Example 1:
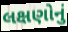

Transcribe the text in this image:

લક્ષણોનું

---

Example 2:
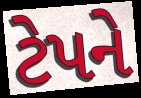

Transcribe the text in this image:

ટેપને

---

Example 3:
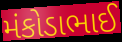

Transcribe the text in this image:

મંકોડાભાઈ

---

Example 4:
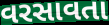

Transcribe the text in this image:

વરસાવતા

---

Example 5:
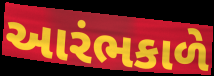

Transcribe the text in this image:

આરંભકાળે